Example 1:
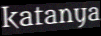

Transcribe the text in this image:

katanya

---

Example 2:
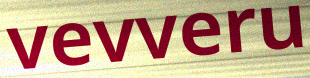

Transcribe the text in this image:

vevveru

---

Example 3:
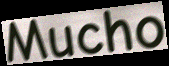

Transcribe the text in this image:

Mucho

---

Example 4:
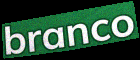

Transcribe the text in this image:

branco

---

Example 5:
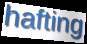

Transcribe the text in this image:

hafting